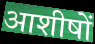
आशीषों